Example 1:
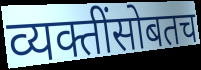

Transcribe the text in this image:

व्यक्तींसोबतच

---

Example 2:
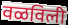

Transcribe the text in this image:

वळविली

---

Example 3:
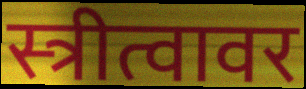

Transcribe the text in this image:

स्त्रीत्वावर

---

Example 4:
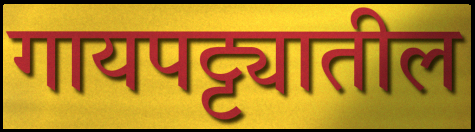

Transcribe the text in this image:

गायपट्ट्यातील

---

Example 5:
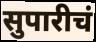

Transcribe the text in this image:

सुपारीचं